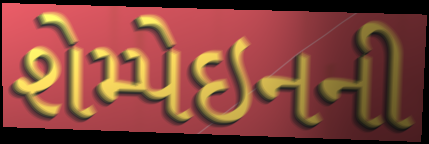
શેમ્પેઇનની